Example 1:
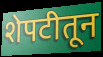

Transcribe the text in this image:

शेपटीतून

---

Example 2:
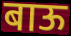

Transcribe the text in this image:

बाऊ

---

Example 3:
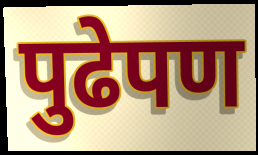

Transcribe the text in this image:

पुढेपण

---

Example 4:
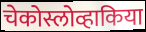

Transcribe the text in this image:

चेकोस्लोव्हाकिया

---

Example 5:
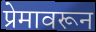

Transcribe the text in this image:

प्रेमावरून